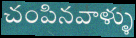
చంపినవాళ్ళు